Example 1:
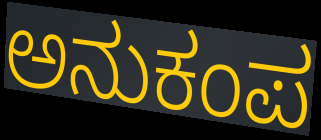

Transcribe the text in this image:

ಅನುಕಂಪ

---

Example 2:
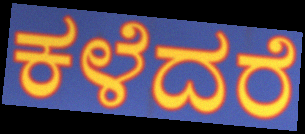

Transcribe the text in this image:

ಕಳೆದರೆ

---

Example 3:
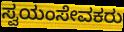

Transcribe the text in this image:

ಸ್ವಯಂಸೇವಕರು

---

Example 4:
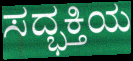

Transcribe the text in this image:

ಸದ್ಭಕ್ತಿಯ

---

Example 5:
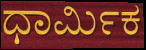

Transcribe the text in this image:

ಧಾರ್ಮಿಕ